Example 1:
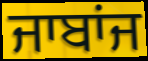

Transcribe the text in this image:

ਜਾਬਾਂਜ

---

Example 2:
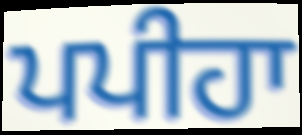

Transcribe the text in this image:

ਪਪੀਹਾ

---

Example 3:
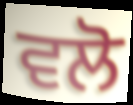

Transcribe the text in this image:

ਵਲੋ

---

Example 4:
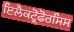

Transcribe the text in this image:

ਇਲੈਕਟ੍ਰੋਫੋਰਸਿਸ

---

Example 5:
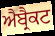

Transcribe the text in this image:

ਐਬ੍ਰੈਕਟ